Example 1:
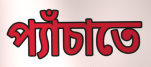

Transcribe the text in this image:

প্যাঁচাতে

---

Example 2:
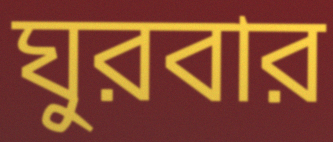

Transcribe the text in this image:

ঘুরবার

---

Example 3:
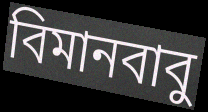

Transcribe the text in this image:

বিমানবাবু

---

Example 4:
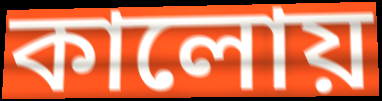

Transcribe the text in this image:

কালোয়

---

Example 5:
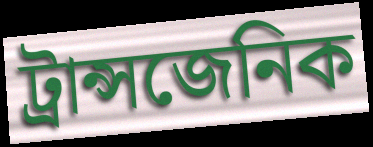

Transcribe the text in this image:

ট্রান্সজেনিক